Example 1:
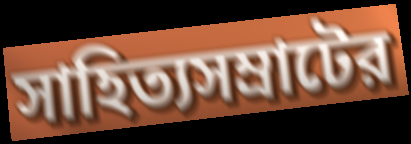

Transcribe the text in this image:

সাহিত্যসম্রাটের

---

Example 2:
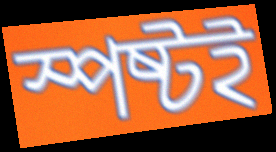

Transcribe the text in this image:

স্পষ্টই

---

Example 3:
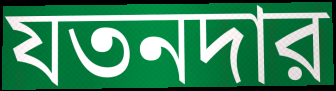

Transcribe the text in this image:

যতনদার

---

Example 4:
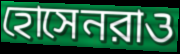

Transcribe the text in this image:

হোসেনরাও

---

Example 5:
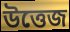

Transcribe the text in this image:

উত্তেজ